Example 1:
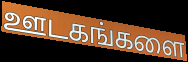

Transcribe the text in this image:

ஊடகங்களை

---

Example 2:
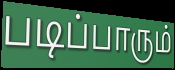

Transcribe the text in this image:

படிப்பாரும்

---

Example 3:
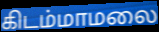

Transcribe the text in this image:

கிடம்மாமலை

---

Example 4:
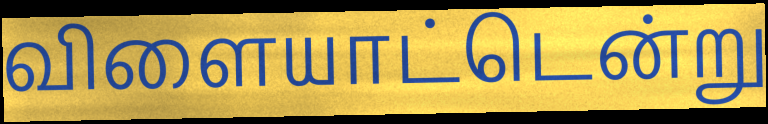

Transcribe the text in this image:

விளையாட்டென்று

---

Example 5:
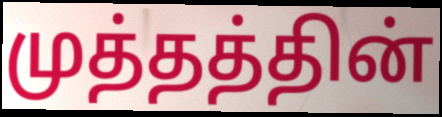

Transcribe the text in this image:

முத்தத்தின்